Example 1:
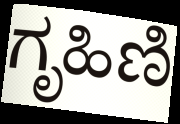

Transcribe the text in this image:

ಗೃಹಿಣಿ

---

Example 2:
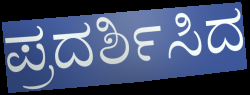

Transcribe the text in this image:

ಪ್ರದರ್ಶಿಸಿದ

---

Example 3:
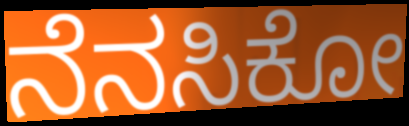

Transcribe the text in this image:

ನೆನಸಿಕೋ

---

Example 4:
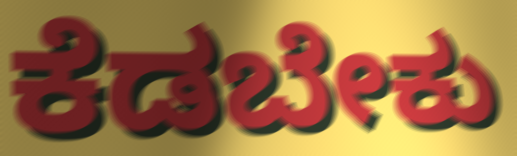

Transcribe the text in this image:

ಕೆಡಬೇಕು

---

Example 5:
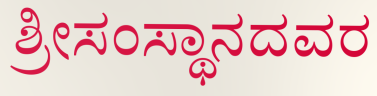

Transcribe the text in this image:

ಶ್ರೀಸಂಸ್ಥಾನದವರ